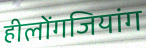
हीलोंगजियांग